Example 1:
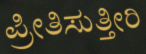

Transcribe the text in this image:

ಪ್ರೀತಿಸುತ್ತೀರಿ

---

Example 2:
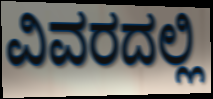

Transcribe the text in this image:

ವಿವರದಲ್ಲಿ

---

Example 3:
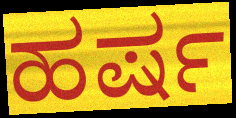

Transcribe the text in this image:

ಹರ್ಷ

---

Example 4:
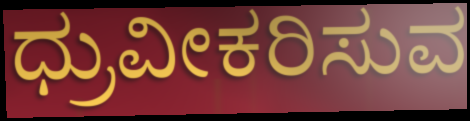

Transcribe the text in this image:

ಧ್ರುವೀಕರಿಸುವ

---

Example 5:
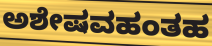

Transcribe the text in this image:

ಅಶೇಷವಹಂತಹ